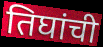
तिघांची